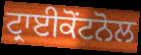
ਟ੍ਰਾਈਕੋਂਟਨੋਲ